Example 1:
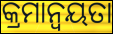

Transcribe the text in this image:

କ୍ରମାନ୍ବୟତା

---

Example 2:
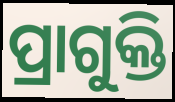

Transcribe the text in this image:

ପ୍ରାଗୁକ୍ତି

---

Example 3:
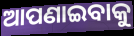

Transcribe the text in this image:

ଆପଣାଇବାକୁ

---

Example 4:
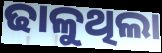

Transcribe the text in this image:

ଢାଳୁଥିଲା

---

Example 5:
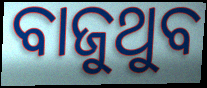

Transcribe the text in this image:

ବାଜୁଥୁବ